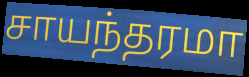
சாயந்தரமா